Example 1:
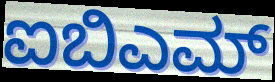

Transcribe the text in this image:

ಐಬಿಎಮ್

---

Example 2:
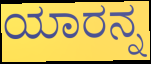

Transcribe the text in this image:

ಯಾರನ್ನ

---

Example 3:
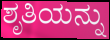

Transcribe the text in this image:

ಶೃತಿಯನ್ನು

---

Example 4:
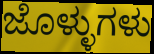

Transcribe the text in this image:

ಜೊಳ್ಳುಗಳು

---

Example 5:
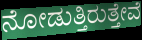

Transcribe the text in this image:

ನೋಡುತ್ತಿರುತ್ತೇವೆ